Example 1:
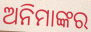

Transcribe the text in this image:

ଅନିମାଙ୍କର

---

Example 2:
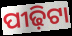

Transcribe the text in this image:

ପୀଢ଼ିଟା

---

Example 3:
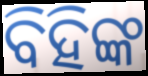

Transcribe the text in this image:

ବିହିଙ୍କ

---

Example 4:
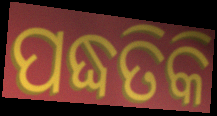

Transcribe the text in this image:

ପଦ୍ଧତିକି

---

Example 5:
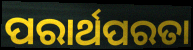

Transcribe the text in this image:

ପରାର୍ଥପରତା